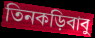
তিনকড়িবাবু